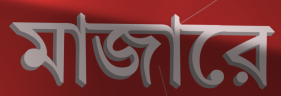
মাজারে